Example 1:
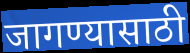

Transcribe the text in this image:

जागण्यासाठी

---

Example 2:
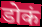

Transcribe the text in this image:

डोकं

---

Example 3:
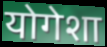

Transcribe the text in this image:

योगेशा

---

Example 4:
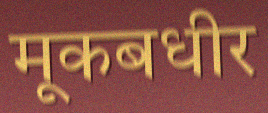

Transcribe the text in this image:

मूकबधीर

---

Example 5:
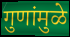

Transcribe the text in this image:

गुणांमुळे